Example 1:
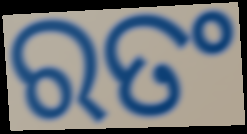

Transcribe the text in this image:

ରତଂ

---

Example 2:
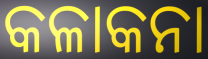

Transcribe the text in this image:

କଳାକନା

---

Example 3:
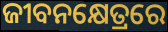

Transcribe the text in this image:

ଜୀବନକ୍ଷେତ୍ରରେ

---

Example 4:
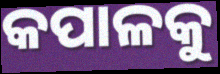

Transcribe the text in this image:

କପାଳକୁ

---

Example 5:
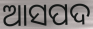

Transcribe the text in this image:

ଆସପଦ